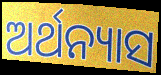
ଅର୍ଥନ୍ୟାସ